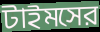
টাইমসের